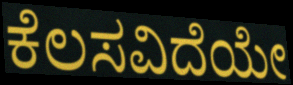
ಕೆಲಸವಿದೆಯೇ